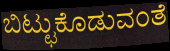
ಬಿಟ್ಟುಕೊಡುವಂತೆ